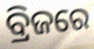
ବ୍ରିଜରେ